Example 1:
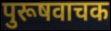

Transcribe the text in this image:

पुरूषवाचक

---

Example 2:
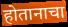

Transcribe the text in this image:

होतानाचा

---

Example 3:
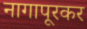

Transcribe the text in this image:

नागापूरकर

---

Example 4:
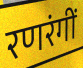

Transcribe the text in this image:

रणरंगीं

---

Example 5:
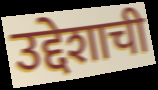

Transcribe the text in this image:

उद्देशाची